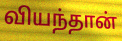
வியந்தான்